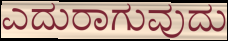
ಎದುರಾಗುವುದು